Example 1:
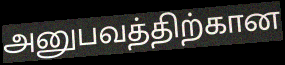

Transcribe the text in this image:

அனுபவத்திற்கான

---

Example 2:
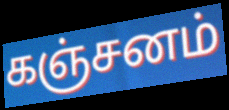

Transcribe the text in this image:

கஞ்சனம்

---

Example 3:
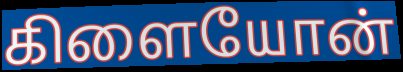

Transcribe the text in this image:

கிளையோன்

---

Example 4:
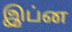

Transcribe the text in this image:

இப்ன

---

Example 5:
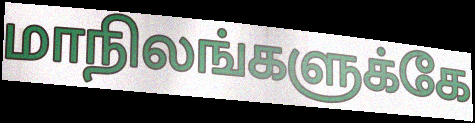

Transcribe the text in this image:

மாநிலங்களுக்கே